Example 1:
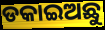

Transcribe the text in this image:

ଡକାଇଅଛୁ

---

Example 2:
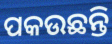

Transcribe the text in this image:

ପକଉଛନ୍ତି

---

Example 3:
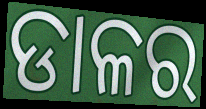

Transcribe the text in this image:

ଡାଳର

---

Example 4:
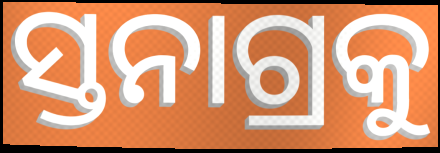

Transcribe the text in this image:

ସ୍ତନାଗ୍ରକୁ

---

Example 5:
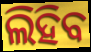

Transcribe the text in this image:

ଲିହିବ